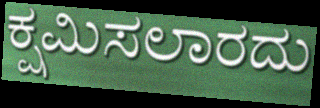
ಕ್ಷಮಿಸಲಾರದು